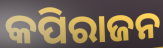
କପିରାଜନ